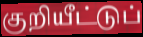
குறியீட்டுப்